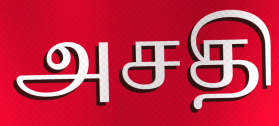
அசதி